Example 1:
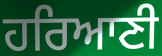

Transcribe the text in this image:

ਹਰਿਆਣੀ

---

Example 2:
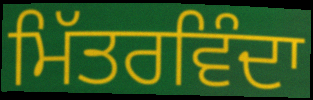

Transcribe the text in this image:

ਮਿੱਤਰਵਿੰਦਾ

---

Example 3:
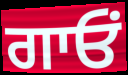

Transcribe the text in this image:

ਗਾਓਂ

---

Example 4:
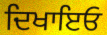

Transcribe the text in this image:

ਦਿਖਾਇਓ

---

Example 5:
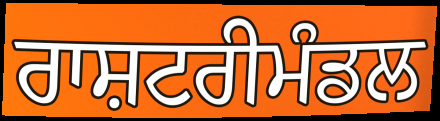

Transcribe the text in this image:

ਰਾਸ਼ਟਰੀਮੰਡਲ